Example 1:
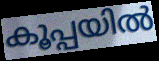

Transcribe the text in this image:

കൂപ്പയിൽ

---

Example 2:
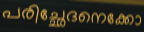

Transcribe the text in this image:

പരിച്ഛേദനെക്കോ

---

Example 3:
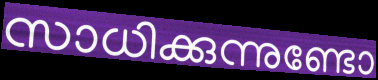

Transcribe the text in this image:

സാധിക്കുന്നുണ്ടോ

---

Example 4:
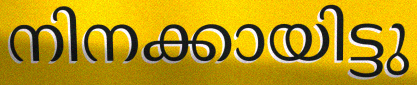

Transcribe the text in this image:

നിനക്കായിട്ടു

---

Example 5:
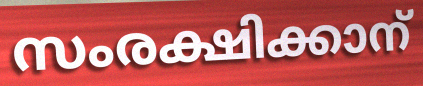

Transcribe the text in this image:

സംരക്ഷിക്കാന്